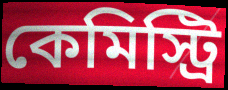
কেমিস্ট্রি